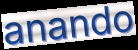
anando